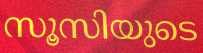
സൂസിയുടെ